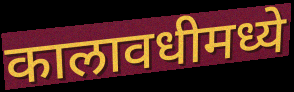
कालावधीमध्ये